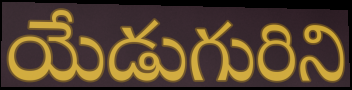
యేడుగురిని